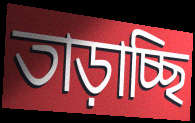
তাড়াচ্ছি